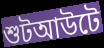
শুটআউটে